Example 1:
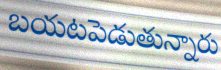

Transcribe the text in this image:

బయటపెడుతున్నారు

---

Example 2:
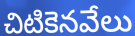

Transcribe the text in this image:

చిటికెనవేలు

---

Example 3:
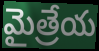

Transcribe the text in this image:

మైత్రేయ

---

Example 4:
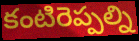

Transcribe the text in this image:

కంటిరెప్పల్ని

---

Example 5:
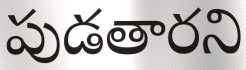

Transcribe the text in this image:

పుడతారని